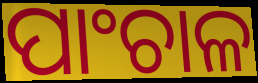
ପାଂଚାଳ